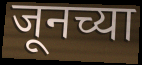
जूनच्या